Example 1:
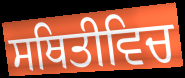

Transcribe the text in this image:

ਸਥਿਤੀਵਿਚ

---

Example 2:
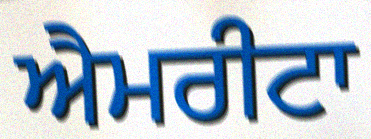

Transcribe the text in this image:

ਐਮਰੀਟਾ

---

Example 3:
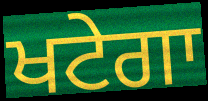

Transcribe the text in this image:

ਖਟੇਗਾ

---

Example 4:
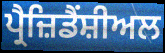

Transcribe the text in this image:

ਪ੍ਰੈਜ਼ਿਡੈਂਸ਼ੀਅਲ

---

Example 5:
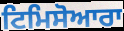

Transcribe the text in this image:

ਟਿਮਿਸੋਆਰਾ